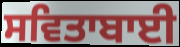
ਸਵਿਤਾਬਾਈ